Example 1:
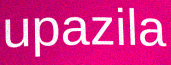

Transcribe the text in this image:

upazila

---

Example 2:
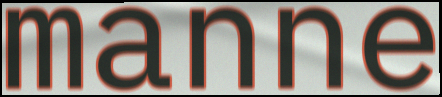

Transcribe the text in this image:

manne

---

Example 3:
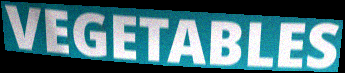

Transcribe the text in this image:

VEGETABLES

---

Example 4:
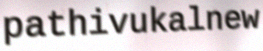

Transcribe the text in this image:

pathivukalnew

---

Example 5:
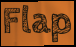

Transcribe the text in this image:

Flap